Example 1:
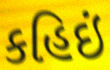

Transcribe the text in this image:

કહિઇં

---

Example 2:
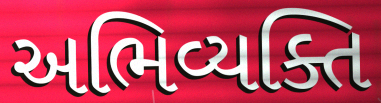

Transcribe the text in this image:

અભિવ્યક્તિ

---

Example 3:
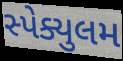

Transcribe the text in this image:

સ્પેક્યુલમ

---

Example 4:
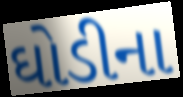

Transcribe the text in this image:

ઘોડીના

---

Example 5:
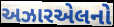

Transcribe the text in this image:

અઝારએલનો